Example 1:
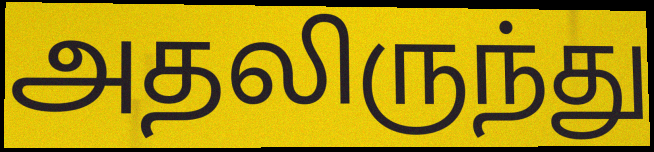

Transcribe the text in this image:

அதலிருந்து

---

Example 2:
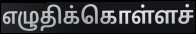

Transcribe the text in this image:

எழுதிக்கொள்ளச்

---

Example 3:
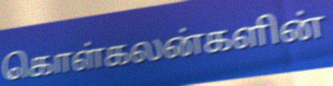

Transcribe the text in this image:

கொள்கலன்களின்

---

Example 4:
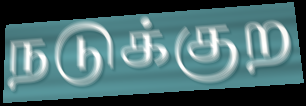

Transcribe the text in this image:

நடுக்குற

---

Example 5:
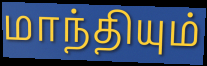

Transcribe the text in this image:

மாந்தியும்